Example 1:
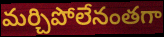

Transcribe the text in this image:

మర్చిపోలేనంతగా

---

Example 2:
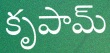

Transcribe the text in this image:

కృపామ్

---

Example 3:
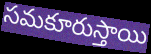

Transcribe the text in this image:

సమకూరుస్తాయి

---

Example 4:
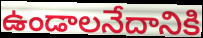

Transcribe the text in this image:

ఉండాలనేదానికి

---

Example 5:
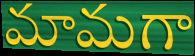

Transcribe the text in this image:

మామగా